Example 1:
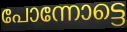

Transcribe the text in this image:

പോന്നോട്ടെ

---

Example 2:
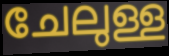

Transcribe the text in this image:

ചേലുള്ള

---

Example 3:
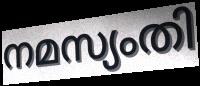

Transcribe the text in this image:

നമസ്യംതി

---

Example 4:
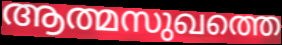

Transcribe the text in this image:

ആത്മസുഖത്തെ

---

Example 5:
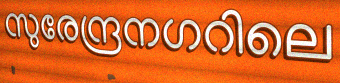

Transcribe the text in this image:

സുരേന്ദ്രനഗറിലെ